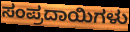
ಸಂಪ್ರದಾಯಿಗಳು